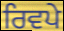
ਰਿਵਪੇ